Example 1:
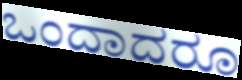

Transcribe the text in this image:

ಒಂದಾದರೂ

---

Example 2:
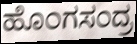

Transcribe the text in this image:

ಹೊಂಗಸಂದ್ರ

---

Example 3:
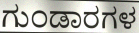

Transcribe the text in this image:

ಗುಂಡಾರಗಳ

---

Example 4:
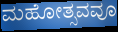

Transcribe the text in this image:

ಮಹೋತ್ಸವವೂ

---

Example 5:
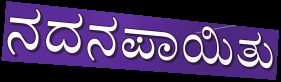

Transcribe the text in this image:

ನದನಪಾಯಿತು